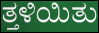
ತ್ತಳಿಯಿತು